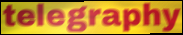
telegraphy